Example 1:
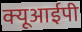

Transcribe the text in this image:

क्यूआईपी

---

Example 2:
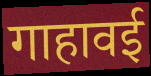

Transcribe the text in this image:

गाहावई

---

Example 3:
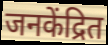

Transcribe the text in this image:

जनकेंद्रित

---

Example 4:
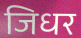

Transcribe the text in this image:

जिधर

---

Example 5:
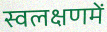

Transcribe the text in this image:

स्वलक्षणमें